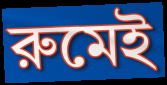
রুমেই